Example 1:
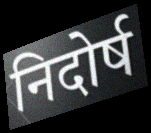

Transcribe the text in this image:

निदोर्ष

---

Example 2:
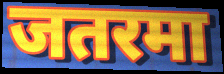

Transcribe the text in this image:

जतरमा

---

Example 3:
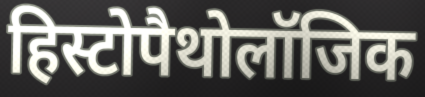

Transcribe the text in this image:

हिस्टोपैथोलॉजिक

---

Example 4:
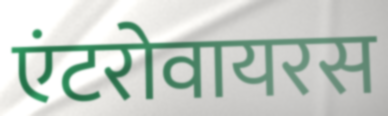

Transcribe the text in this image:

एंटरोवायरस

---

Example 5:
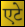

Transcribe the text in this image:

एटे